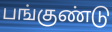
பங்குண்டு